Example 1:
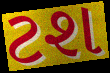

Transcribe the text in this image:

ટશ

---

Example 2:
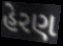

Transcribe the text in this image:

હેરણ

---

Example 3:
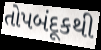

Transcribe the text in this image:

તોપબંદૂકથી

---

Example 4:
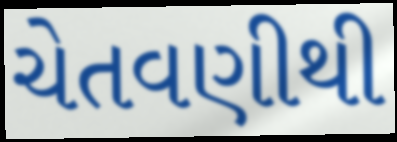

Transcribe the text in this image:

ચેતવણીથી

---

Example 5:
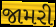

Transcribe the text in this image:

જામરી